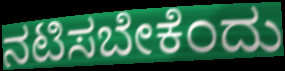
ನಟಿಸಬೇಕೆಂದು